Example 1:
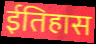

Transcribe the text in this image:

ईतिहास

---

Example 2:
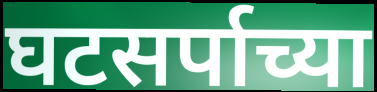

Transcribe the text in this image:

घटसर्पाच्या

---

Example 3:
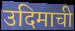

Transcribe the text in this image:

उदिमाची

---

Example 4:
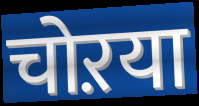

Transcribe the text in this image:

चोऱया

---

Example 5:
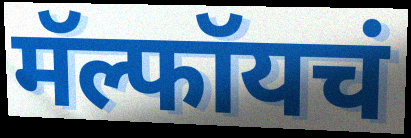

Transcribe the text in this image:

मॅल्फॉयचं